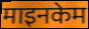
माइनकेम